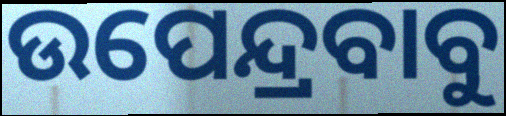
ଉପେନ୍ଦ୍ରବାବୁ